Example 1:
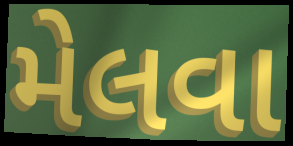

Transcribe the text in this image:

મેલવા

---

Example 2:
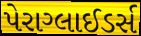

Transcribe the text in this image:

પેરાગ્લાઈડર્સ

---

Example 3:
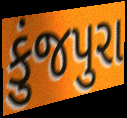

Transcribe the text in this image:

કુંજપુરા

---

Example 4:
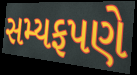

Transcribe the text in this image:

સમ્યફપણે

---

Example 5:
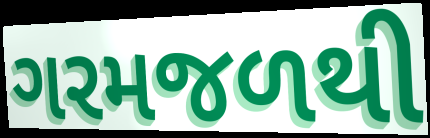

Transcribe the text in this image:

ગરમજળથી